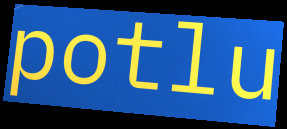
potlu